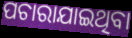
ପଚାରାଯାଇଥିବା